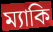
ম্যাকি